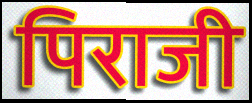
पिराजी